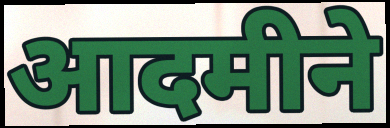
आदमीने